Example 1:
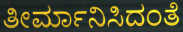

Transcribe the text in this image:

ತೀರ್ಮಾನಿಸಿದಂತೆ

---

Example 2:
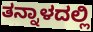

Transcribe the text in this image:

ತನ್ನಾಳದಲ್ಲಿ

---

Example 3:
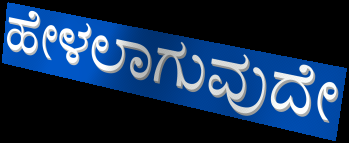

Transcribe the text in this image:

ಹೇಳಲಾಗುವುದೇ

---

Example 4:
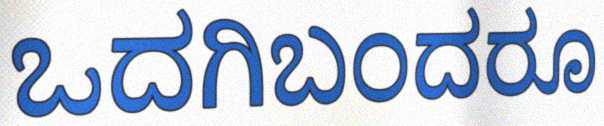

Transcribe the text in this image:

ಒದಗಿಬಂದರೂ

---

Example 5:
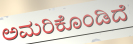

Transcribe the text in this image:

ಅಮರಿಕೊಂಡಿದೆ